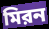
মিরন